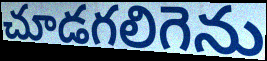
చూడగలిగెను